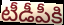
టీడీపీకి